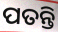
ପତନ୍ତି